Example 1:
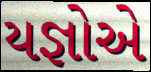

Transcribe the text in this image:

યજ્ઞોએ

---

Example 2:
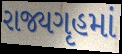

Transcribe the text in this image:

રાજ્યગૃહમાં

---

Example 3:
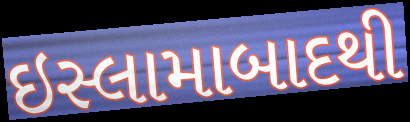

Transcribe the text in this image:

ઇસ્લામાબાદથી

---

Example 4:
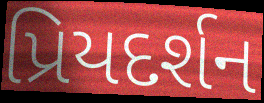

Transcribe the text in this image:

પ્રિયદર્શન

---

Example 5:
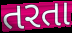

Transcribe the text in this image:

તરતા